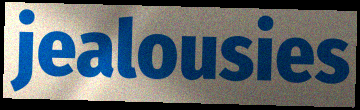
jealousies